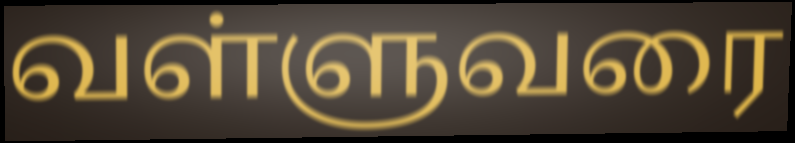
வள்ளுவரை